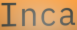
Inca